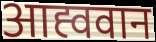
आह्ववान